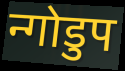
न्गोडुप